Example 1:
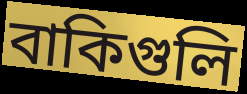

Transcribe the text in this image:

বাকিগুলি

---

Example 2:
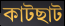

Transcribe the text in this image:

কাটছাট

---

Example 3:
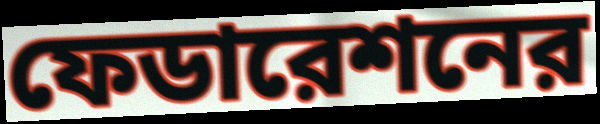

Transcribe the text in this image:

ফেডারেশনের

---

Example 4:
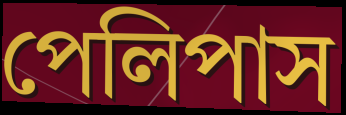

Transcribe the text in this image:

পেলিপাস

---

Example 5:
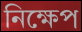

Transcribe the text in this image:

নিক্ষেপ